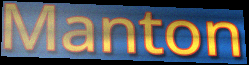
Manton